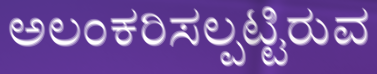
ಅಲಂಕರಿಸಲ್ಪಟ್ಟಿರುವ